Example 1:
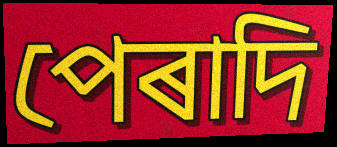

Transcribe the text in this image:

পেৰাদি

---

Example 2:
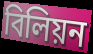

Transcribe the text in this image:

বিলিয়ন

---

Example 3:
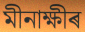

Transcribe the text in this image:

মীনাক্ষীৰ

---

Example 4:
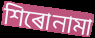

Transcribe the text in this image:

শিৰোনামা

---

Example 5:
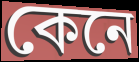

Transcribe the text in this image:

কেনে